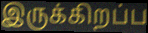
இருக்கிறப்ப